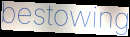
bestowing